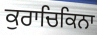
ਕੁਰਾਚਿਕਿਨਾ